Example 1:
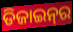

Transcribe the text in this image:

ଡିଜାଇନ୍‌ର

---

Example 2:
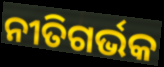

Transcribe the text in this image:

ନୀତିଗର୍ଭକ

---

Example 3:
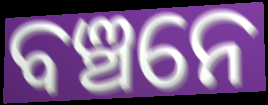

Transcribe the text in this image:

ବଞ୍ଚନେ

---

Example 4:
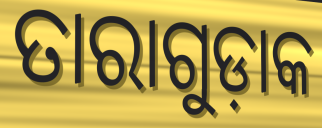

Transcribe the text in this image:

ତାରାଗୁଡ଼ାକ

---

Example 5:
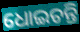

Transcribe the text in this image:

ଧୋଇଚନ୍ତି